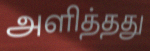
அளித்தது